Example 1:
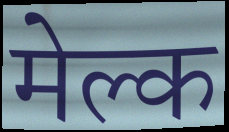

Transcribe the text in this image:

मेल्क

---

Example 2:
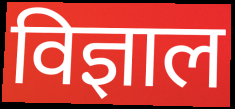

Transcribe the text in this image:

विज्ञाल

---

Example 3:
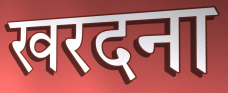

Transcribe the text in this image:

खरदना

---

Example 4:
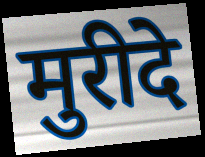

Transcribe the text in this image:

मुरीदे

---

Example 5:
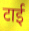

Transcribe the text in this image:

टाई